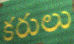
కరులు